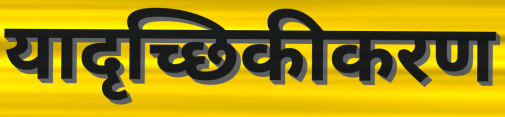
यादृच्छिकीकरण